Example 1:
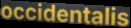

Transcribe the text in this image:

occidentalis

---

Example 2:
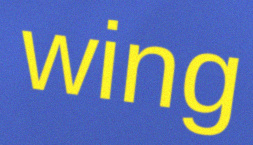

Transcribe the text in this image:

wing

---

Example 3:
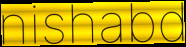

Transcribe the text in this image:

nishabd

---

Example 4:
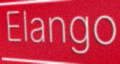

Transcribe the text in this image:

Elango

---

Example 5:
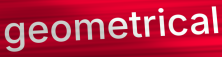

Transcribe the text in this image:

geometrical